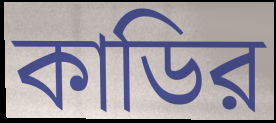
কাডির